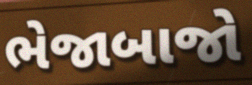
ભેજાબાજો